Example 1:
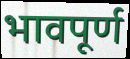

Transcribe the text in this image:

भावपूर्ण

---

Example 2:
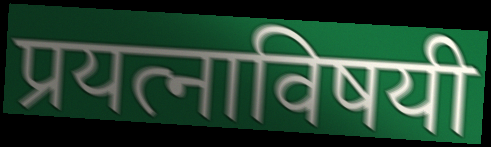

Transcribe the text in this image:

प्रयत्नाविषयी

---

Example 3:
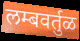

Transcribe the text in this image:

लम्बवर्तुळ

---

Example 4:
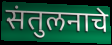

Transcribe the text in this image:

संतुलनाचे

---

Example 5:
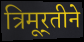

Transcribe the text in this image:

त्रिमूर्तीने